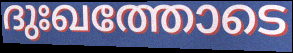
ദുഃഖത്തോടെ